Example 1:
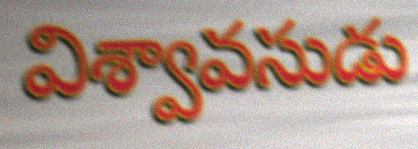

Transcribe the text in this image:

విశ్వావసుడు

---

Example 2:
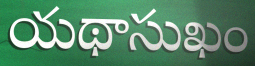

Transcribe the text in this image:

యథాసుఖం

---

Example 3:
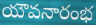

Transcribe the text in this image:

యౌవనారంభ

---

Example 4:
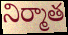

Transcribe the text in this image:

నిర్మాత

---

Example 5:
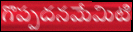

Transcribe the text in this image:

గొప్పదనమేమిటి